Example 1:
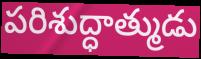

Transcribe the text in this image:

పరిశుద్ధాత్ముడు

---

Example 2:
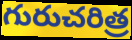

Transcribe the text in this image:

గురుచరిత్ర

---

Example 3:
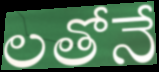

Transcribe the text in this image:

లతోనే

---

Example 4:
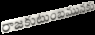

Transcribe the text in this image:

రాజకుటుంబమునకు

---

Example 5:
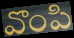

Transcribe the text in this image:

వొంపి